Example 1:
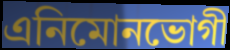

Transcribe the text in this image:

এনিমোনভোগী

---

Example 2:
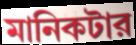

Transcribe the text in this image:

মানিকটার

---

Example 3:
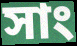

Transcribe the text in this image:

সাং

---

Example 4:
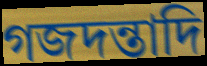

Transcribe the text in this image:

গজদন্তাদি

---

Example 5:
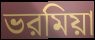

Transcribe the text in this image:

ভরমিয়া